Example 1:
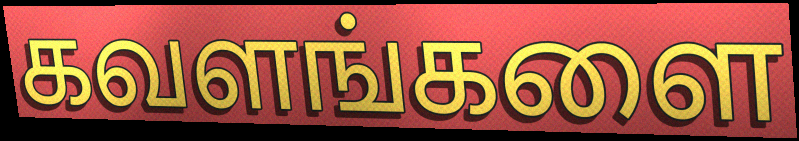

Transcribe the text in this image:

கவளங்களை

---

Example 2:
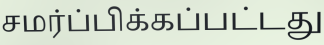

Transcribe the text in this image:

சமர்ப்பிக்கப்பட்டது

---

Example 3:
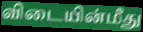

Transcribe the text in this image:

விடையின்மீது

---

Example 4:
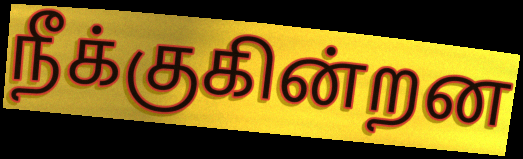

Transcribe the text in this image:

நீக்குகின்றன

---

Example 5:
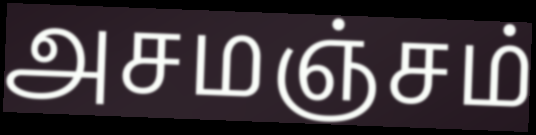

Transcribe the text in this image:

அசமஞ்சம்